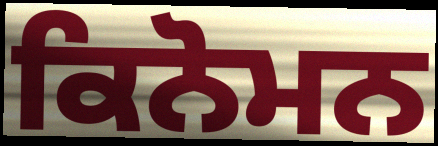
ਕਿਨੋਮਨ